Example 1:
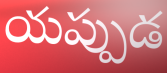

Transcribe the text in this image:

యప్పుడ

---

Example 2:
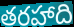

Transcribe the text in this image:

తరహాది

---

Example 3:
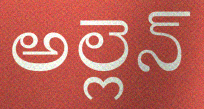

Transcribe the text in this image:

అల్లెన్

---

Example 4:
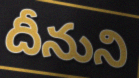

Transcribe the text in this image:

దీనుని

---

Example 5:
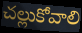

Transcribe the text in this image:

చల్లుకోవాలి